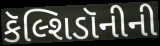
કૅલ્શિડૉનીની